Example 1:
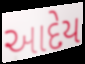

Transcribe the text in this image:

આદેય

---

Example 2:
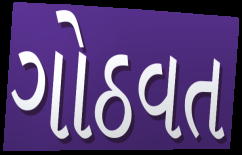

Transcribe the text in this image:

ગોઠવત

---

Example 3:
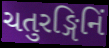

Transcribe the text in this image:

ચતુરઙ્ગિનિં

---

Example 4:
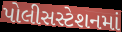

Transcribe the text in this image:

પોલીસસ્ટેશનમાં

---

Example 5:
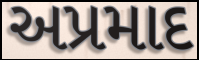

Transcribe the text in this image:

અપ્રમાદ